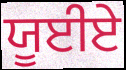
ਯੂਈਏ